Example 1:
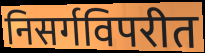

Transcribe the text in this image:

निसर्गविपरीत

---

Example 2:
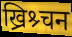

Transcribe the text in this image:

ख्रिश्र्चन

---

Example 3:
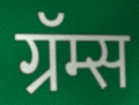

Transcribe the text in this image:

ग्रॅम्स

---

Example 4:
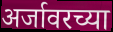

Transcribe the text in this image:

अर्जावरच्या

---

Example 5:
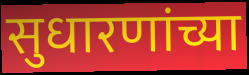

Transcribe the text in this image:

सुधारणांच्या